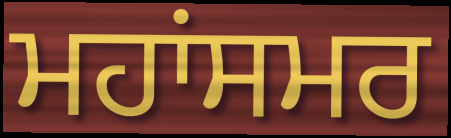
ਮਹਾਂਸਮਰ